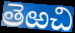
తెఱచి